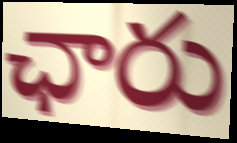
ఛారు